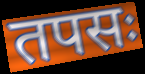
तपसः